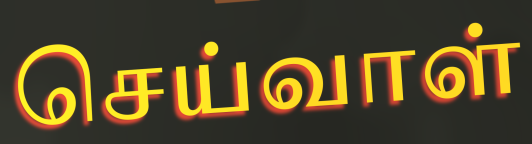
செய்வாள்